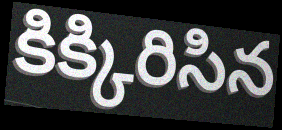
కిక్కిరిసిన